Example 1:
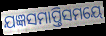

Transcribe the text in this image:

ଯଜ୍ଞସମାପ୍ତିସମୟେ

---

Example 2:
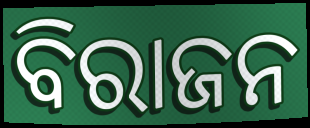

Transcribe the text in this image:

ବିରାଜନ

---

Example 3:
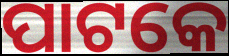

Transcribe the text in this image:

ପାଟକେ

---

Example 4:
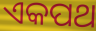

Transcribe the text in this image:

ଏକପଥ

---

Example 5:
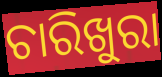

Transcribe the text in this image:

ଚାରିଖୁରା